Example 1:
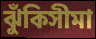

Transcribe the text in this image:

ঝুঁকিসীমা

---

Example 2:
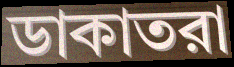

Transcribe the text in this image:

ডাকাতরা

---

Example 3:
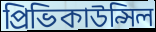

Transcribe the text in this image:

প্রিভিকাউন্সিল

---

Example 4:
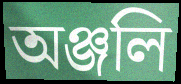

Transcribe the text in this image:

অঞ্জলি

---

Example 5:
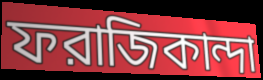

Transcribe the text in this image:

ফরাজিকান্দা